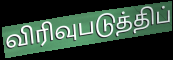
விரிவுபடுத்திப்